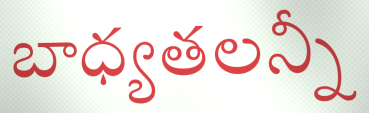
బాధ్యతలన్నీ